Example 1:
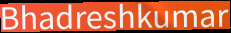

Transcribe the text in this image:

Bhadreshkumar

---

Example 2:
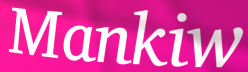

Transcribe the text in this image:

Mankiw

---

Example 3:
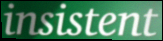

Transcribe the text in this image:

insistent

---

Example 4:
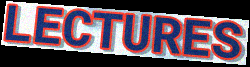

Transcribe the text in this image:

LECTURES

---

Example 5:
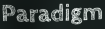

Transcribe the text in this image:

Paradigm